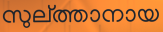
സുല്ത്താനായ